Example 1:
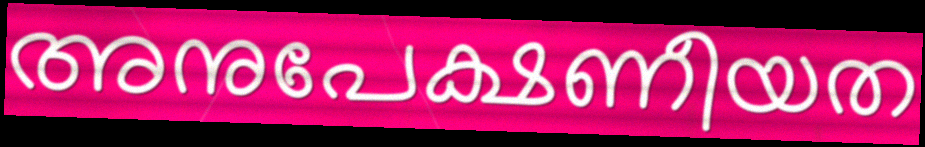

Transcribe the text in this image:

അനുപേക്ഷണീയത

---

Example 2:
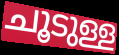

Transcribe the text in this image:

ചൂടുള്ള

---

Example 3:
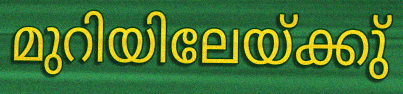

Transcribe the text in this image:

മുറിയിലേയ്ക്കു്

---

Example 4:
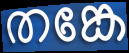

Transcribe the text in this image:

തങ്കേ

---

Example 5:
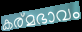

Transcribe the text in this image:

കര്മഭാവം